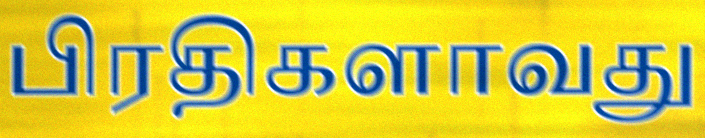
பிரதிகளாவது